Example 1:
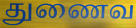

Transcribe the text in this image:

துணைவ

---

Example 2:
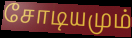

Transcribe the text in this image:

சோடியமும்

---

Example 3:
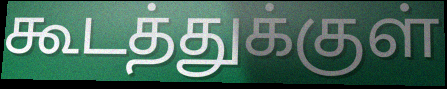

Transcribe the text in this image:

கூடத்துக்குள்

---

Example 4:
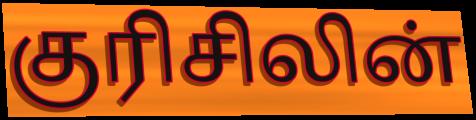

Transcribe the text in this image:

குரிசிலின்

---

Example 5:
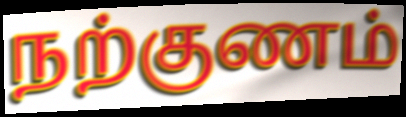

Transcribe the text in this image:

நற்குணம்